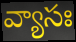
వ్యాసః